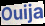
Ouija